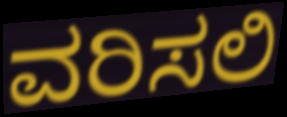
ವರಿಸಲಿ